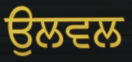
ਉਲਵਲ